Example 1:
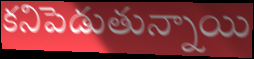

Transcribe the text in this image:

కనిపెడుతున్నాయి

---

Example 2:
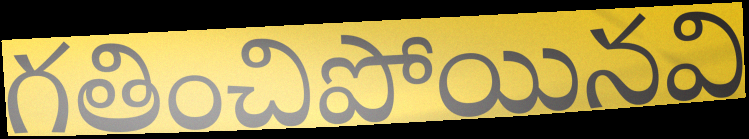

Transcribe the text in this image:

గతించిపోయినవి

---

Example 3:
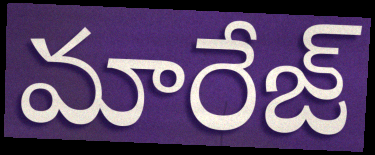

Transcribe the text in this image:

మారేజ్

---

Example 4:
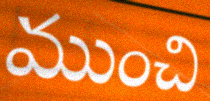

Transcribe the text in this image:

ముంచి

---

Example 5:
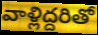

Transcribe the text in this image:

వాళ్లిద్దరితో